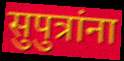
सुपुत्रांना